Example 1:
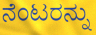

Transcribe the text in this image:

ನೆಂಟರನ್ನು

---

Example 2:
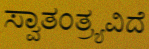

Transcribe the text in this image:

ಸ್ವಾತಂತ್ರ್ಯವಿದೆ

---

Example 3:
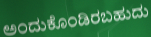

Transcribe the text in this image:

ಅಂದುಕೊಂಡಿರಬಹುದು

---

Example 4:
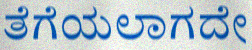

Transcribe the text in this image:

ತೆಗೆಯಲಾಗದೇ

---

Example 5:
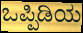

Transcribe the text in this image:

ಒಪ್ಪಿಡಿಯ